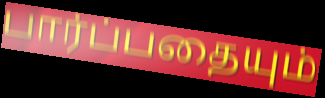
பார்ப்பதையும்